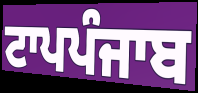
ਟਾਪਪੰਜਾਬ